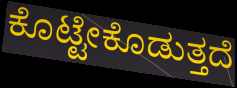
ಕೊಟ್ಟೇಕೊಡುತ್ತದೆ